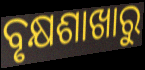
ବୃକ୍ଷଶାଖାରୁ